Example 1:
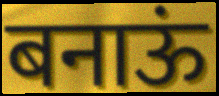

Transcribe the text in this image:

बनाऊं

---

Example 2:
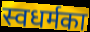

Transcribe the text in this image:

स्वधर्मका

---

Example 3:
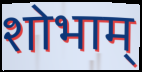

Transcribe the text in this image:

शोभाम्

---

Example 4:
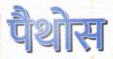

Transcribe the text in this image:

पैथोस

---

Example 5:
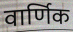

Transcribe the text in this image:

वार्णिक